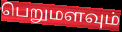
பெறுமளவும்